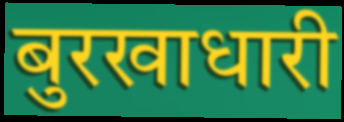
बुरखाधारी